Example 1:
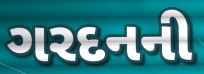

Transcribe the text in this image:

ગરદનની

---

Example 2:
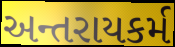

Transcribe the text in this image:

અન્તરાયકર્મ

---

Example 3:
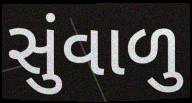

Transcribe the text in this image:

સુંવાળુ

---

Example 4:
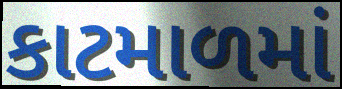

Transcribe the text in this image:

કાટમાળમાં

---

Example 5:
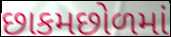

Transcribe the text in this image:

છાકમછોળમાં